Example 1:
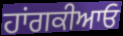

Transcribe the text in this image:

ਹਾਂਗਕੀਆਓ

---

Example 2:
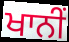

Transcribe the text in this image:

ਖਾਨੀਂ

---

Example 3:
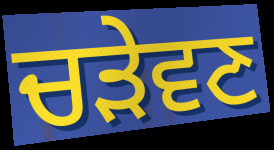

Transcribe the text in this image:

ਚੜੇਵਣ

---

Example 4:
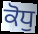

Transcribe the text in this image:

ਕੋਧੁ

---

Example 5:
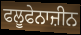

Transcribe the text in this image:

ਫਲੂਫੇਨਾਜ਼ੀਨ